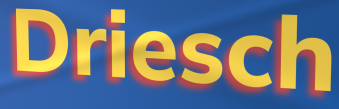
Driesch